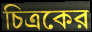
চিত্রকের